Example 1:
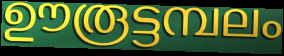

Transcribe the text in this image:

ഊരൂട്ടമ്പലം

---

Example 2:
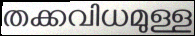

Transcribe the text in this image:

തക്കവിധമുള്ള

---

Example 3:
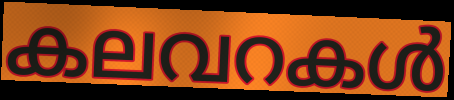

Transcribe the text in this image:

കലവറകൾ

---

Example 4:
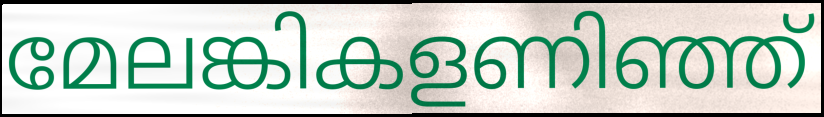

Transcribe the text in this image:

മേലങ്കികളണിഞ്ഞ്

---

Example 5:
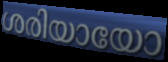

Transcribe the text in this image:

ശരിയായോ